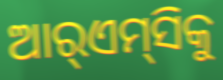
ଆର୍‌ଏମ୍‌ସିକୁ